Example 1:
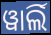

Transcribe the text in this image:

ୱାର୍ଲି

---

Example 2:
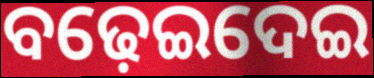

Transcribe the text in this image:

ବଢ଼େଇଦେଇ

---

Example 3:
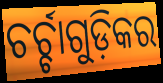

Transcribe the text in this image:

ଚର୍ଚ୍ଚାଗୁଡ଼ିକର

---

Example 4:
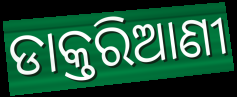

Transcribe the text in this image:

ଡାକ୍ତରିଆଣୀ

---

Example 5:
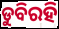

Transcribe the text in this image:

ଡୁବିରହି